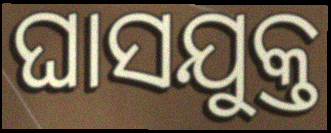
ଘାସଯୁକ୍ତ